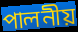
পালনীয়